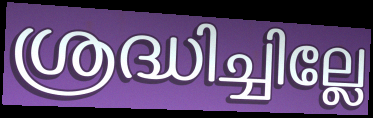
ശ്രദ്ധിച്ചില്ലേ